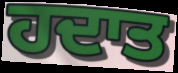
ਹਦਾਤ